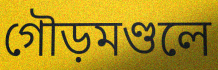
গৌড়মণ্ডলে